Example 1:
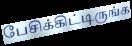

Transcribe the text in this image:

பேசிக்கிட்டிருங்க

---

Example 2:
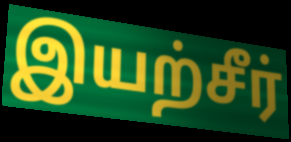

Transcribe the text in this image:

இயற்சீர்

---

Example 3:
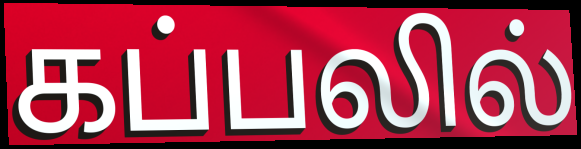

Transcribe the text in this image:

கப்பலில்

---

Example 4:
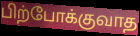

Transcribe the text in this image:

பிற்போக்குவாத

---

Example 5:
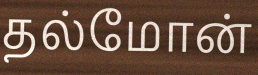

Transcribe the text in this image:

தல்மோன்